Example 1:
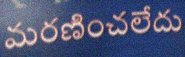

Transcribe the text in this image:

మరణించలేదు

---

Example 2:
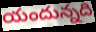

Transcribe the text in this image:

యందున్నది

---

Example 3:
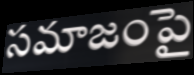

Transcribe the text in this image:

సమాజంపై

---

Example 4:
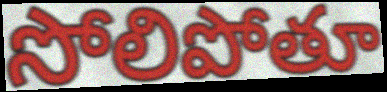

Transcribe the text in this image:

సోలిపోతూ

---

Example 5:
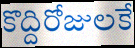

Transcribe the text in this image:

కొద్దిరోజులకే